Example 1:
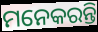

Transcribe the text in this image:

ମନେକରନ୍ତି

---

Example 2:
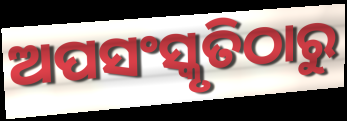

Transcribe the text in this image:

ଅପସଂସ୍କୃତିଠାରୁ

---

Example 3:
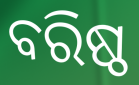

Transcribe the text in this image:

ବରିଷ୍ଠ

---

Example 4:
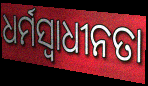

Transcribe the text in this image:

ଧର୍ମସ୍ୱାଧୀନତା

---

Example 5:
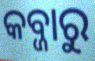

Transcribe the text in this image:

କବ୍ଜାରୁ